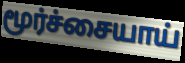
மூர்ச்சையாய்